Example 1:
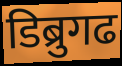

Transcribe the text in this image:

डिब्रुगढ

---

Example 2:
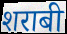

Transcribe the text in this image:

शराबी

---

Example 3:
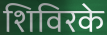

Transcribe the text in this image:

शिविरके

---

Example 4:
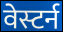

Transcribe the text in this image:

वेस्‍टर्न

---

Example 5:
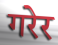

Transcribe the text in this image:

गरेर